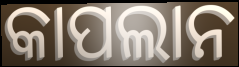
କାପଲାନ